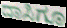
ದಾಸಿಗೂ